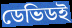
ডেভিডই